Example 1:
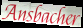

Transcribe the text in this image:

Ansbacher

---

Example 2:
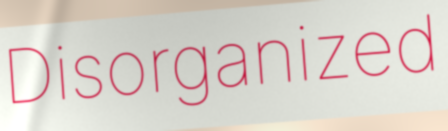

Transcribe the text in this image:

Disorganized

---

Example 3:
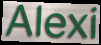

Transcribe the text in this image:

Alexi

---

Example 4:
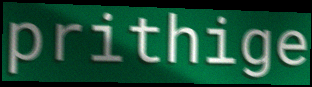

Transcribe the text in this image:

prithige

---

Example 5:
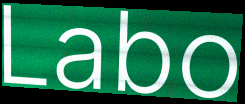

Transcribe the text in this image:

Labo